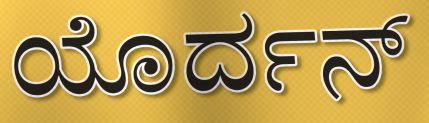
ಯೊರ್ದನ್